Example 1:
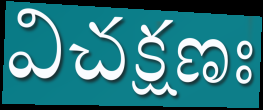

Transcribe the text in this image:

విచక్షణః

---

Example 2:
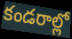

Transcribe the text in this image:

కండరాల్లో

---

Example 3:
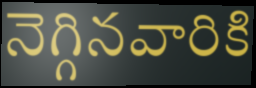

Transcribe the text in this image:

నెగ్గినవారికి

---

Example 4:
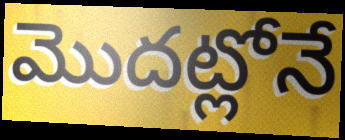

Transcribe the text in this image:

మొదట్లోనే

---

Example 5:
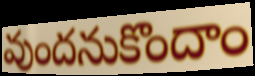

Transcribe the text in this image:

వుందనుకొందాం